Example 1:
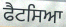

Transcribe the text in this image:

ਫੈਟਸਿਆ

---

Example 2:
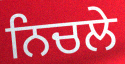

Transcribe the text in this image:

ਨਿਚਲੇ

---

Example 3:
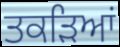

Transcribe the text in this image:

ਤਕੜਿਆਂ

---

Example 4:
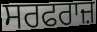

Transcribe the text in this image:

ਸਰਫਰਾਜ਼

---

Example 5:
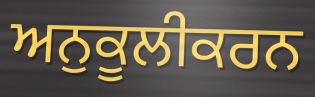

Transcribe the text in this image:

ਅਨੁਕੂਲੀਕਰਨ